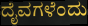
ದೈವಗಳೆಂದು